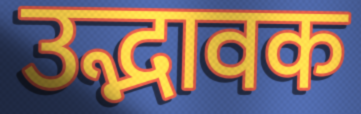
उद्भावक